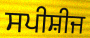
ਸਪੀਸ਼ੀਜ